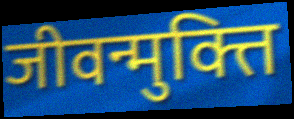
जीवन्मुक्ति